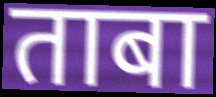
ताबा